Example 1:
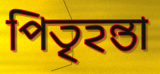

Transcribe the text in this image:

পিতৃহন্তা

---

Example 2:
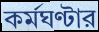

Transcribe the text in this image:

কর্মঘণ্টার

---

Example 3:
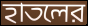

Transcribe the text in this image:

হাতলের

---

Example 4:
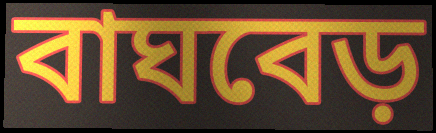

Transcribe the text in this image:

বাঘবেড়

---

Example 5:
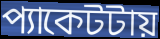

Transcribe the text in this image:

প্যাকেটটায়